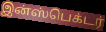
இன்ஸ்பெக்டர்